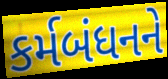
કર્મબંધનને